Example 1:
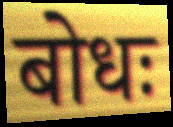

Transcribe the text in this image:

बोधः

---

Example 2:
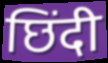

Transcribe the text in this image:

छिंदी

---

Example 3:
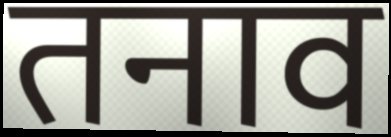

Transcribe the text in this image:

तनाव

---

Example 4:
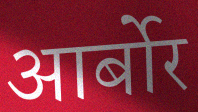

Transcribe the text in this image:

आर्बोर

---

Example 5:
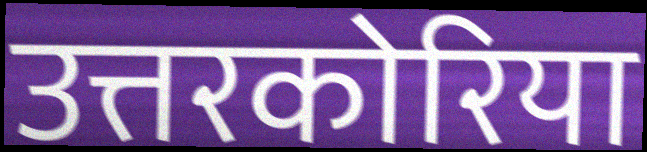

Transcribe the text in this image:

उत्तरकोरिया